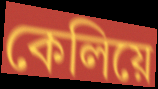
কেলিয়ে